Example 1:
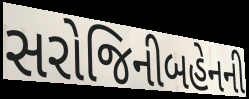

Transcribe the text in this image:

સરોજિનીબહેનની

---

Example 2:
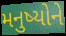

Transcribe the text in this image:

મનુષ્યોને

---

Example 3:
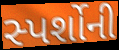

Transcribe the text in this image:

સ્પર્શોની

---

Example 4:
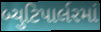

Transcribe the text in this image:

બ્યુટિપાર્લરમાં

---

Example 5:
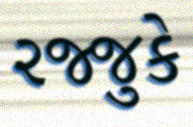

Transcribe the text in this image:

રજ્જુકે